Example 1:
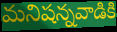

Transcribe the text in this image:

మనిషన్నవాడికి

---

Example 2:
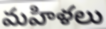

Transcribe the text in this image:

మహిళలు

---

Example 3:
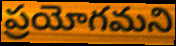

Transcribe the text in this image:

ప్రయోగమని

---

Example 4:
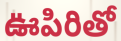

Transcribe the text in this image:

ఊపిరితో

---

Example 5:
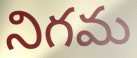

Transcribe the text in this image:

నిగమ